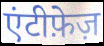
एंटीफ़ेज़